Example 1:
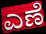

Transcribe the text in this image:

ಎಣೆ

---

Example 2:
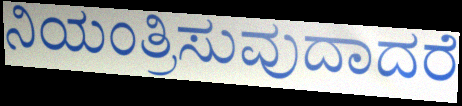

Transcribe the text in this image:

ನಿಯಂತ್ರಿಸುವುದಾದರೆ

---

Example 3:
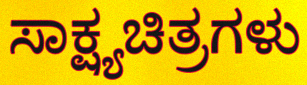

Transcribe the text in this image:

ಸಾಕ್ಷ್ಯಚಿತ್ರಗಳು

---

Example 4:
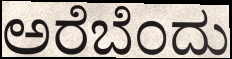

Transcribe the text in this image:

ಅರೆಬೆಂದು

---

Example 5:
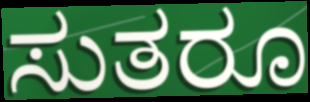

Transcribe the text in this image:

ಸುತರೂ